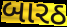
બારઠ